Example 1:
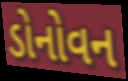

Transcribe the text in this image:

ડોનોવન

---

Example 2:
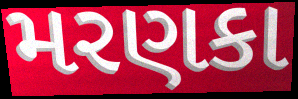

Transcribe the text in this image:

મરણકા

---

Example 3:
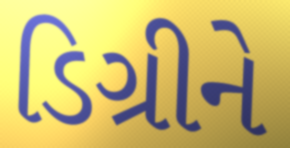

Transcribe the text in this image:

ડિગ્રીને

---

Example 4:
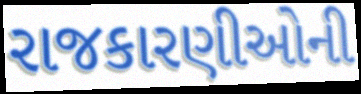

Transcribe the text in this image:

રાજકારણીઓની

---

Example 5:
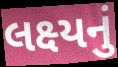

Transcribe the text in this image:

લક્ષ્યનું